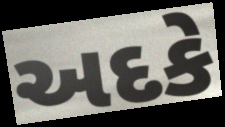
અદકે